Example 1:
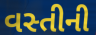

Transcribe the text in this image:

વસ્તીની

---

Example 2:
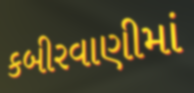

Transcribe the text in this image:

કબીરવાણીમાં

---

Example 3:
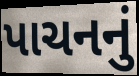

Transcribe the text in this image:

પાચનનું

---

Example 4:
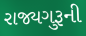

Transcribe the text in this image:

રાજ્યગુરૂની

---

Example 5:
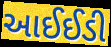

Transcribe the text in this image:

આઈઈડી